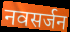
नवसर्जन